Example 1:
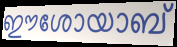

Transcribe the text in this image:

ഈശോയാബ്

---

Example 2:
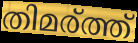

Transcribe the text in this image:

തിമര്ത്ത്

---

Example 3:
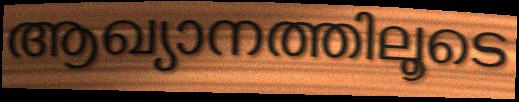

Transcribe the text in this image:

ആഖ്യാനത്തിലൂടെ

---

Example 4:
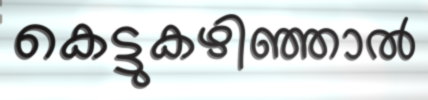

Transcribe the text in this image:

കെട്ടുകഴിഞ്ഞാൽ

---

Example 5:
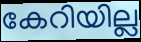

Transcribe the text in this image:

കേറിയില്ല